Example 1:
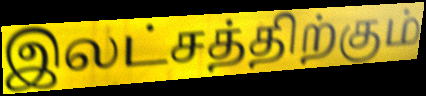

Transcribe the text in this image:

இலட்சத்திற்கும்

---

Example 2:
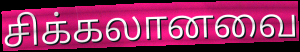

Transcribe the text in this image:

சிக்கலானவை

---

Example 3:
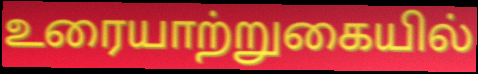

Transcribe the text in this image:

உரையாற்றுகையில்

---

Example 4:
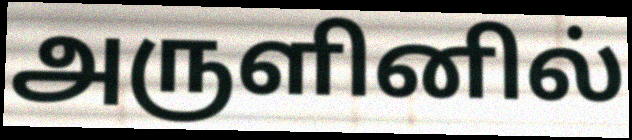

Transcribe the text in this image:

அருளினில்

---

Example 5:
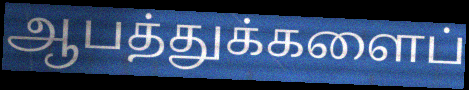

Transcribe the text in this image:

ஆபத்துக்களைப்